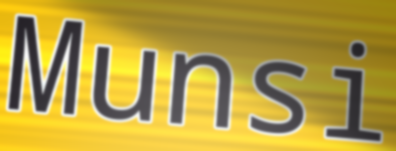
Munsi